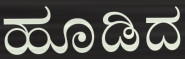
ಹೂಡಿದ